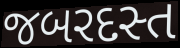
જબરદસ્ત